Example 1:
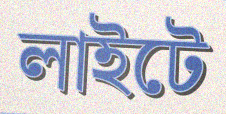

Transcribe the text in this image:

লাইটে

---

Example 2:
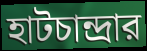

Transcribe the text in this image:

হাটচান্দ্রার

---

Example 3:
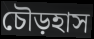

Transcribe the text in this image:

চৌড়হাস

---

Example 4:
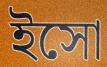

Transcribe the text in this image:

ইসো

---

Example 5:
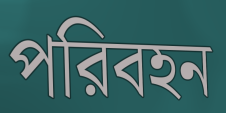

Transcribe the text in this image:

পরিবহন